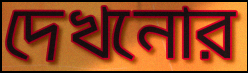
দেখনোর